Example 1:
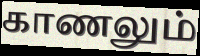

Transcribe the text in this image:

காணலும்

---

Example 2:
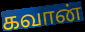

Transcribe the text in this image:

கவான்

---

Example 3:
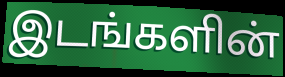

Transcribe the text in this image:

இடங்களின்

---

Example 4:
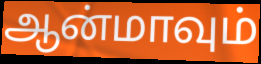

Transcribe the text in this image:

ஆன்மாவும்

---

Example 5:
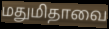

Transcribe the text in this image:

மதுமிதாவை